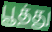
பூத்து